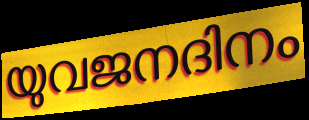
യുവജനദിനം